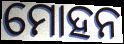
ମୋହନ